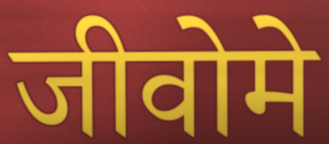
जीवोमे